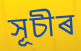
সূচীৰ